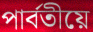
পাৰ্বতীয়ে